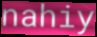
nahiy